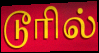
டூரில்